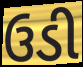
ઉડી